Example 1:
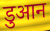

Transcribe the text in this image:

डुआन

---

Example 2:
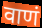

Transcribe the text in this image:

वाणं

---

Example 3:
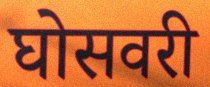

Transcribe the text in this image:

घोसवरी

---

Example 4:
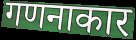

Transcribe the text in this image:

गणनाकार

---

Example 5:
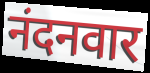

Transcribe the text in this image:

नंदनवार